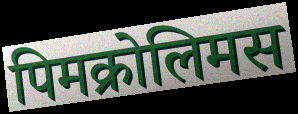
पिमक्रोलिमस